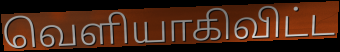
வெளியாகிவிட்ட